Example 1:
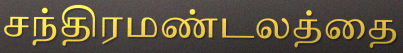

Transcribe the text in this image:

சந்திரமண்டலத்தை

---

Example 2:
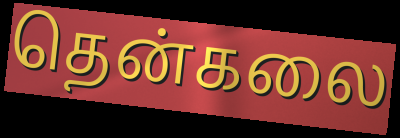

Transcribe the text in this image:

தென்கலை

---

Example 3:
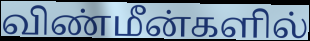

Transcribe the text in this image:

விண்மீன்களில்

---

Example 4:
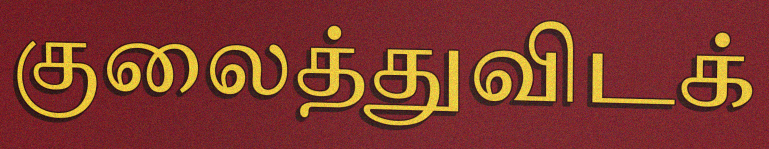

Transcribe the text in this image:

குலைத்துவிடக்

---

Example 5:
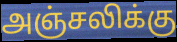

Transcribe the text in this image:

அஞ்சலிக்கு